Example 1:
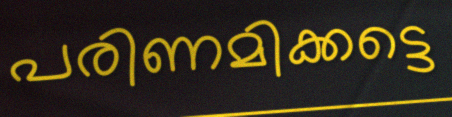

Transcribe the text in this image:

പരിണമിക്കട്ടെ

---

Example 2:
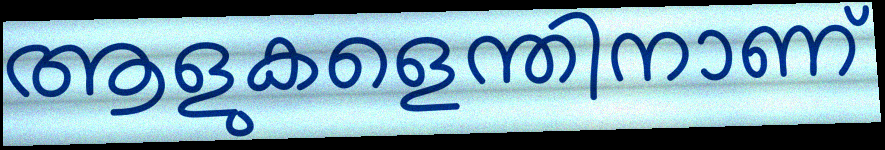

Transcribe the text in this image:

ആളുകളെന്തിനാണ്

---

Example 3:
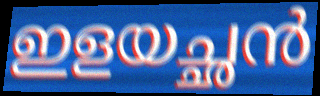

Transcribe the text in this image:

ഇളയച്ഛൻ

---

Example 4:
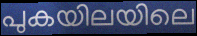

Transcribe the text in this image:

പുകയിലയിലെ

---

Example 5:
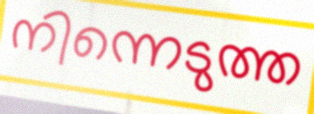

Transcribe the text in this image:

നിന്നെടുത്ത